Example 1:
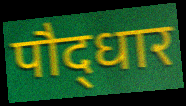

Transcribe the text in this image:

पौद्धार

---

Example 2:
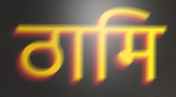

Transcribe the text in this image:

ठामि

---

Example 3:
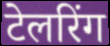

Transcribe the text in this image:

टेलरिंग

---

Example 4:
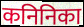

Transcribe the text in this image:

कनिनिका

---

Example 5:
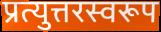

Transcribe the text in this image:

प्रत्युत्तरस्वरूप